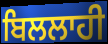
ਬਿਲਲਾਹੀ